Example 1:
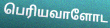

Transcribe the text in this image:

பெரியவாளோட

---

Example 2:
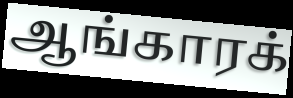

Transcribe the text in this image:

ஆங்காரக்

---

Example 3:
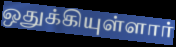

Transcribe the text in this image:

ஒதுக்கியுள்ளார்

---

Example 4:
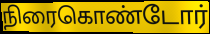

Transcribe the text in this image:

நிரைகொண்டோர்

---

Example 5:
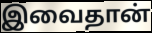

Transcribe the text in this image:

இவைதான்